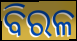
ବିରଳ